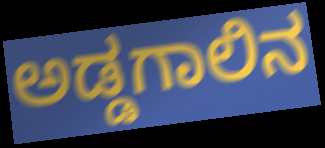
ಅಡ್ಡಗಾಲಿನ